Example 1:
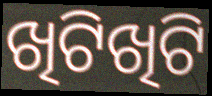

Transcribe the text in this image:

ଖିଟିଖିଟି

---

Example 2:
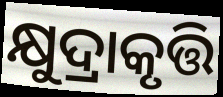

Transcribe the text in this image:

କ୍ଷୁଦ୍ରାକୃତ୍ତି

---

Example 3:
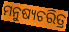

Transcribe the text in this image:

ମନୁଷ୍ୟଚରିତ୍ର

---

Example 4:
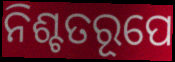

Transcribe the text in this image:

ନିଶ୍ଚତରୂପେ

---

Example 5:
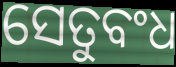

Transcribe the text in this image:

ସେତୁବଂଧ